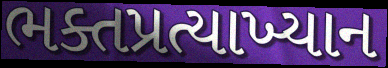
ભક્તપ્રત્યાખ્યાન